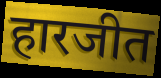
हारजीत